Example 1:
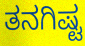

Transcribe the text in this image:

ತನಗಿಷ್ಟ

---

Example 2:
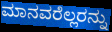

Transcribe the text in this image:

ಮಾನವರೆಲ್ಲರನ್ನು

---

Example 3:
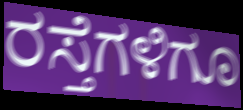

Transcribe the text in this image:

ರಸ್ತೆಗಳಿಗೂ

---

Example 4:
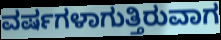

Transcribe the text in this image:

ವರ್ಷಗಳಾಗುತ್ತಿರುವಾಗ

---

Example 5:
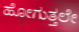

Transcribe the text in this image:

ಹೋಗುತ್ತಲೇ